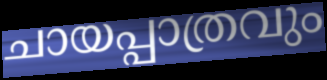
ചായപ്പാത്രവും